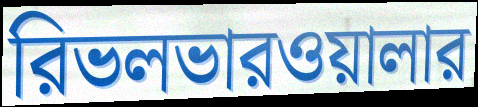
রিভলভারওয়ালার